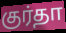
குர்தா